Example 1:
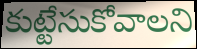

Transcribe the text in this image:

కుట్టేసుకోవాలని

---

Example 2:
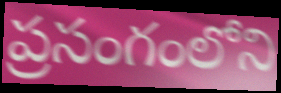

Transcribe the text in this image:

ప్రసంగంలోని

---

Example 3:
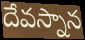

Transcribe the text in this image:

దేవస్నాన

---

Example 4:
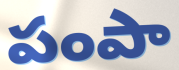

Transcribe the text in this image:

పంపా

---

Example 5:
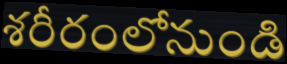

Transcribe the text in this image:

శరీరంలోనుండి